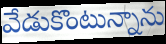
వేడుకొంటున్నాను